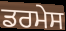
ਡਰਮੇਸ